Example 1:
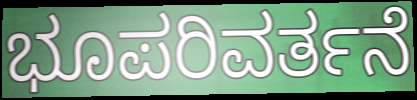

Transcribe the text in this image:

ಭೂಪರಿವರ್ತನೆ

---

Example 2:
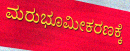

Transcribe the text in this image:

ಮರುಭೂಮೀಕರಣಕ್ಕೆ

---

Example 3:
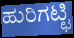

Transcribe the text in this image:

ಹುರಿಗಟ್ಟಿ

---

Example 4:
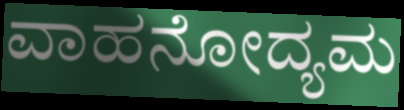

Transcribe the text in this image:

ವಾಹನೋದ್ಯಮ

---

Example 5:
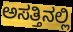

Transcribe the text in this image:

ಅಸತ್ತಿನಲ್ಲಿ